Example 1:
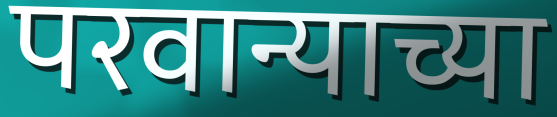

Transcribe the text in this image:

परवान्याच्या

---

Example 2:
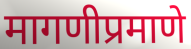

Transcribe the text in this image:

मागणीप्रमाणे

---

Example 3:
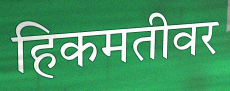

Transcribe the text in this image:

हिकमतीवर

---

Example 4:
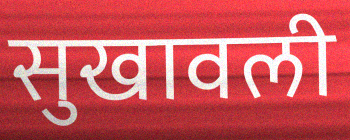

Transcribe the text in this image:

सुखावली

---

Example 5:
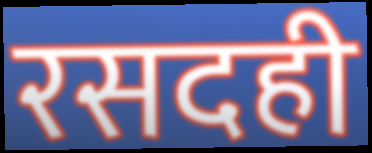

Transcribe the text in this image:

रसदही